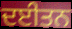
ਦਈਤਨ